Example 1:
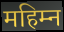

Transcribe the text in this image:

महिम्न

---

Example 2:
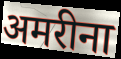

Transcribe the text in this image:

अमरीना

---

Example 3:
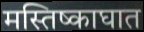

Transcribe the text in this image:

मस्तिष्काघात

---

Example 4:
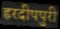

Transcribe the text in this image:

हरदीपपुरी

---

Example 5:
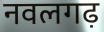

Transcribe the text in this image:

नवलगढ़